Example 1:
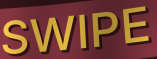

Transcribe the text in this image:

SWIPE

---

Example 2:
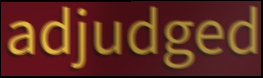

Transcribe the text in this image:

adjudged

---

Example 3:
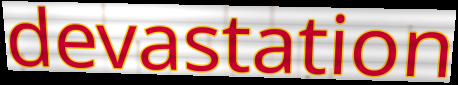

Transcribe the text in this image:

devastation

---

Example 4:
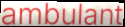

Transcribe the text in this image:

ambulant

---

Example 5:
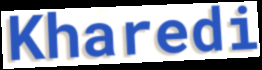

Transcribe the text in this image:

Kharedi